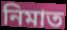
নিমাত